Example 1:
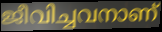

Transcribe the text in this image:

ജീവിച്ചവനാണ്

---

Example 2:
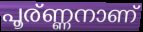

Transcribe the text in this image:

പൂര്ണ്ണനാണ്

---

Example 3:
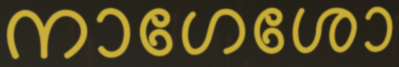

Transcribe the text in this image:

നാഗേശോ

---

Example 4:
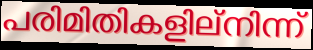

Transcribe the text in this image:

പരിമിതികളില്നിന്ന്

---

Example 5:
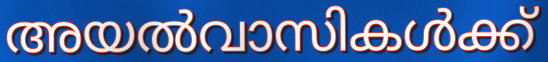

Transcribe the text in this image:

അയൽവാസികൾക്ക്